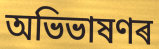
অভিভাষণৰ